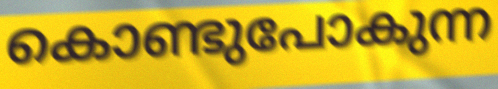
കൊണ്ടുപോകുന്ന